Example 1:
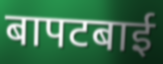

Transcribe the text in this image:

बापटबाई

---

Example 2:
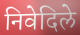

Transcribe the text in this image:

निवेदिले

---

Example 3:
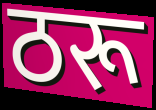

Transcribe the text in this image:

ठरू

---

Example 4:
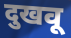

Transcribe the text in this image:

दुखवू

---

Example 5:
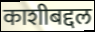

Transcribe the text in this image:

काशीबद्दल